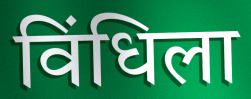
विंधिला